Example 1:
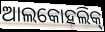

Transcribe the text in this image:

ଆଲକୋହଲିକ୍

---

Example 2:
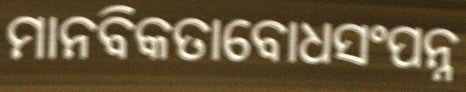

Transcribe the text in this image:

ମାନବିକତାବୋଧସଂପନ୍ନ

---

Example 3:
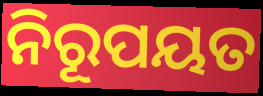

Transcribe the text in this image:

ନିରୂପୟତ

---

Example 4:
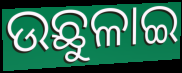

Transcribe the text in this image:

ଉଛୁଳାଇ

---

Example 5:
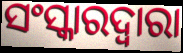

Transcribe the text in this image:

ସଂସ୍କାରଦ୍ୱାରା